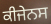
ਕੀਜੇਨਸ